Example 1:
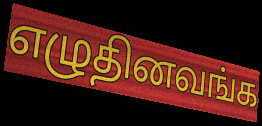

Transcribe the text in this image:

எழுதினவங்க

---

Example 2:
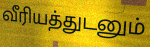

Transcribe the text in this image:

வீரியத்துடனும்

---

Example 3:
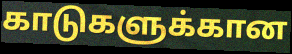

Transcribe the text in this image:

காடுகளுக்கான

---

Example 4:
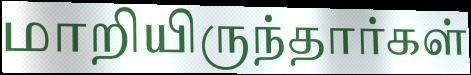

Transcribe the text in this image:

மாறியிருந்தார்கள்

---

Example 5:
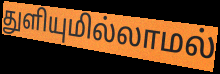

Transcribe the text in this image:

துளியுமில்லாமல்